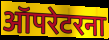
ऑपरेटरना